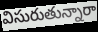
విసురుతున్నారా